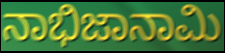
ನಾಭಿಜಾನಾಮಿ